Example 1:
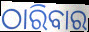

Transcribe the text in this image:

ଠାରିବାର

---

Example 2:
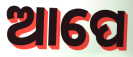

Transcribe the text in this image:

ଆପେ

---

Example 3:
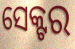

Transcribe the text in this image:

ସେକ୍ଟର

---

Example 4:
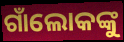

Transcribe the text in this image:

ଗାଁଲୋକଙ୍କୁ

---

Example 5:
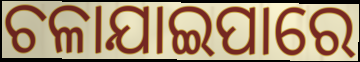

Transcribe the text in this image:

ଚଳାଯାଇପାରେ